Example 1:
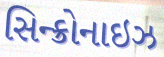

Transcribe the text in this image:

સિન્ક્રોનાઇઝ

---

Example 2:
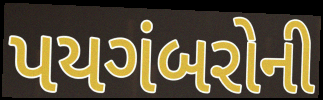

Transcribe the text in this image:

પયગંબરોની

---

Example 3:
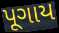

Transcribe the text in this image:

પૂગાય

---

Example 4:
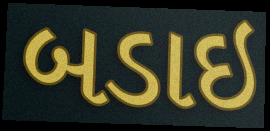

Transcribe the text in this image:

બડાઇ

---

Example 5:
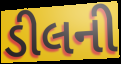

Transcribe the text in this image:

ડીલની